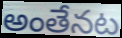
అంతేనట